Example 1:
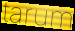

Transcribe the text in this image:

tarum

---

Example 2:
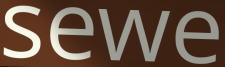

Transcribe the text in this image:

sewe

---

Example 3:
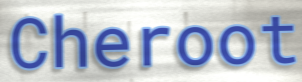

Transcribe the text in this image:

Cheroot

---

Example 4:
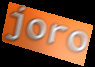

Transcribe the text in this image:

joro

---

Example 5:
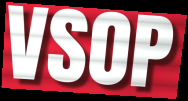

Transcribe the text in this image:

VSOP